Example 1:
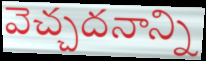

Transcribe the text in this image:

వెచ్చదనాన్ని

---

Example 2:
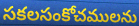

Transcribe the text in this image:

సకలసంకోచములను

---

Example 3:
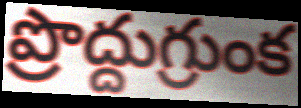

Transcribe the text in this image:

ప్రొద్దుగ్రుంక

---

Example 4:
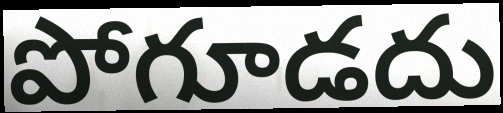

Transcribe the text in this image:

పోగూడదు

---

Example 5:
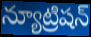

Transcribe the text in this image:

న్యూట్రిషన్